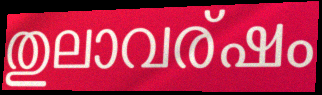
തുലാവര്ഷം